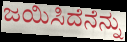
ಜಯಿಸಿದೆನೆನ್ನು